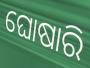
ଘୋଷାରି